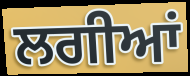
ਲਗੀਆਂ